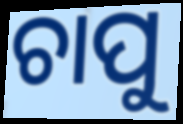
ଚାପୁ